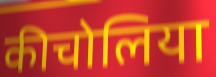
कीचोलिया